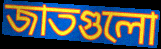
জাতগুলো